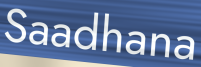
Saadhana